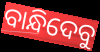
ବାନ୍ଧିଦେବୁ